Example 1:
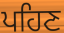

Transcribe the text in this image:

ਪਹਿਣ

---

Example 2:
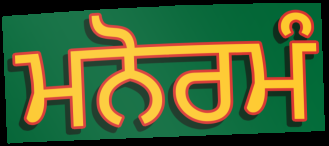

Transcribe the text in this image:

ਮਨੋਰਮੰ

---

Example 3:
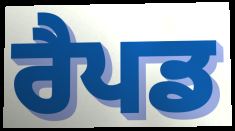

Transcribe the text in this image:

ਰੈਪਡ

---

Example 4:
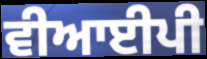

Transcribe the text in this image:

ਵੀਆਈਪੀ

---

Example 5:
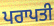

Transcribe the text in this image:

ਪਰਾਪਤੀ